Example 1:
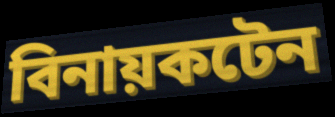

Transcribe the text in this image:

বিনায়কটেন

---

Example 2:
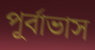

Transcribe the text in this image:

পূৰ্বাভাস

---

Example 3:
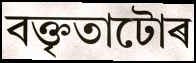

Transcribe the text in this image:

বক্তৃতাটোৰ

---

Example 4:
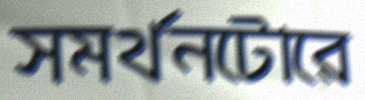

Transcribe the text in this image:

সমৰ্থনটোৱে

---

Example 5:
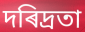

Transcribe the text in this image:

দৰিদ্ৰতা